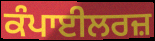
ਕੰਪਾਈਲਰਜ਼